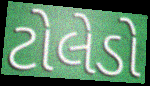
ટોલેડો